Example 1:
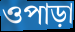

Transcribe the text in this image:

ওপাড়া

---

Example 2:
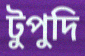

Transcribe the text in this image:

টুপুদি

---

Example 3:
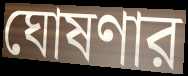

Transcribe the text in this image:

ঘোষণার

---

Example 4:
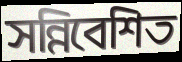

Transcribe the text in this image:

সন্নিবেশিত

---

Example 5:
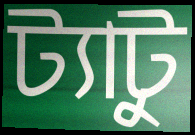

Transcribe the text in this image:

ট্যাটু